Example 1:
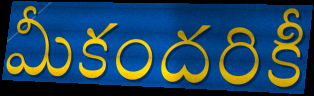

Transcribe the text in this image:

మీకందరికీ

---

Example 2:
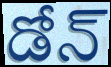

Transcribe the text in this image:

డోన్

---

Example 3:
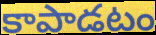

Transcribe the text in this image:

కాపాడటం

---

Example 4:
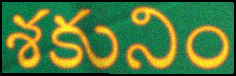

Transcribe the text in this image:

శకునిం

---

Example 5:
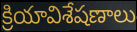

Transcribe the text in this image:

క్రియావిశేషణాలు